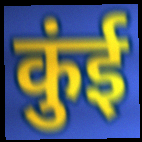
कुंई